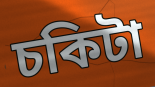
চকিটা